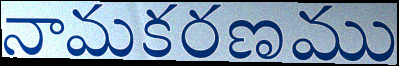
నామకరణము